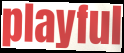
playful